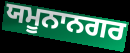
ਯਮੂਨਾਨਗਰ